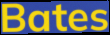
Bates